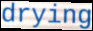
drying